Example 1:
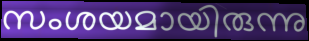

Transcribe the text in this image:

സംശയമായിരുന്നു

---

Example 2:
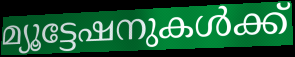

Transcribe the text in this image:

മ്യൂട്ടേഷനുകൾക്ക്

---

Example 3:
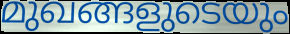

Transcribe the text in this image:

മുഖങ്ങളുടെയും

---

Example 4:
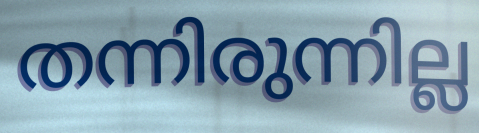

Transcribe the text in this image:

തന്നിരുന്നില്ല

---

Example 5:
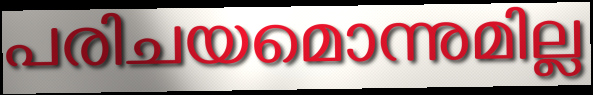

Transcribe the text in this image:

പരിചയമൊന്നുമില്ല